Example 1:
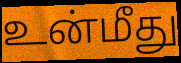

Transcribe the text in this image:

உன்மீது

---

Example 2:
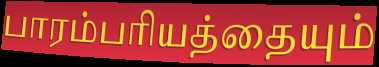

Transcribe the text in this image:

பாரம்பரியத்தையும்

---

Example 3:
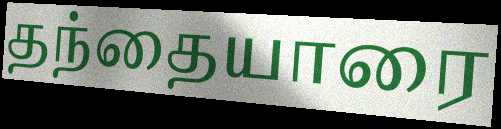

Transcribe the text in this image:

தந்தையாரை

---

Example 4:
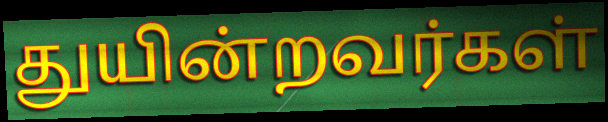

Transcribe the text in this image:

துயின்றவர்கள்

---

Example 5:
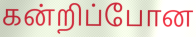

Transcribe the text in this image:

கன்றிப்போன